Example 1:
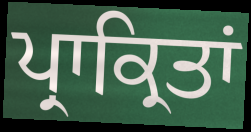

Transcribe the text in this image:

ਪ੍ਰਾਕ੍ਰਿਤਾਂ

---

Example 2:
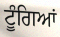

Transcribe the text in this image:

ਟੂੰਗਿਆਂ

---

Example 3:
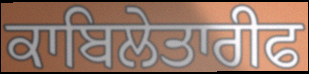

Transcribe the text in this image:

ਕਾਬਿਲੇਤਾਰੀਫ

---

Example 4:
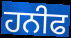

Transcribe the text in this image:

ਹਨੀਫ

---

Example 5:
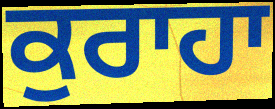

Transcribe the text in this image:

ਕੁਰਾਹਾ